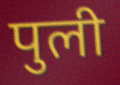
पुली